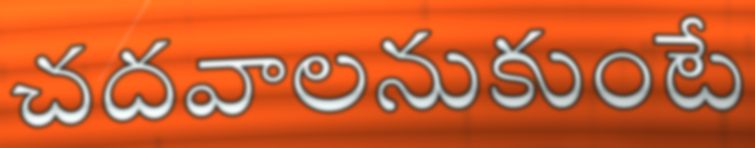
చదవాలనుకుంటే